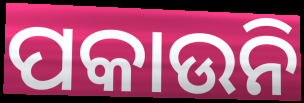
ପକାଉନି